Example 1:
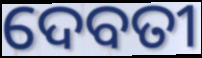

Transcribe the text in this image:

ଦେବତୀ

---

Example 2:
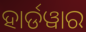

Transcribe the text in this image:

ହାର୍ଡୱାର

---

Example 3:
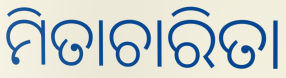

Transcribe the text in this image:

ମିତାଚାରିତା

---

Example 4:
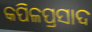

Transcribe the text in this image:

କପିଳପ୍ରସାଦ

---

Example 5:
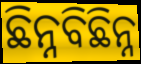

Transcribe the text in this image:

ଛିନ୍ନବିଛିନ୍ନ